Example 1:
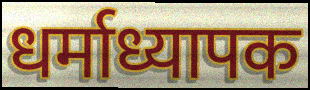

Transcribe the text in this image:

धर्माध्यापक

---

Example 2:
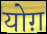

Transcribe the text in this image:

योग़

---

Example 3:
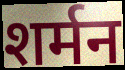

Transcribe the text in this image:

शर्मन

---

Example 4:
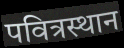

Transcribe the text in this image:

पवित्रस्‍थान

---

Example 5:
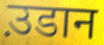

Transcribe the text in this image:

उ़डान